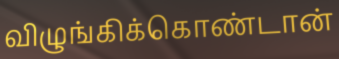
விழுங்கிக்கொண்டான்